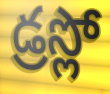
డ్రస్లో